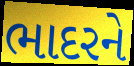
ભાદરને